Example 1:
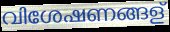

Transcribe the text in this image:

വിശേഷണങ്ങള്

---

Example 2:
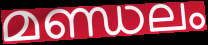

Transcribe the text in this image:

മണ്ഡലം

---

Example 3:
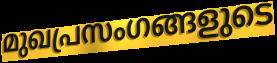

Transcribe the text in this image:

മുഖപ്രസംഗങ്ങളുടെ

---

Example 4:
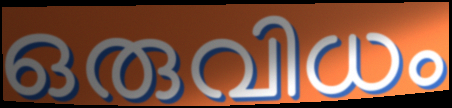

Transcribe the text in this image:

ഒരുവിധം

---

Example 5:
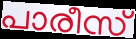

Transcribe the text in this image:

പാരീസ്